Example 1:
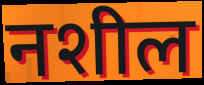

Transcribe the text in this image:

नशील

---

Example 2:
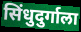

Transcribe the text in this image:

सिंधुदुर्गाला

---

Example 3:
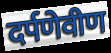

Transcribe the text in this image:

दर्पणेवीण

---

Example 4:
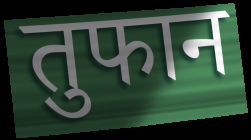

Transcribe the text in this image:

तुफान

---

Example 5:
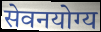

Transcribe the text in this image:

सेवनयोग्य